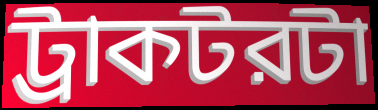
ট্রাকটরটা